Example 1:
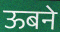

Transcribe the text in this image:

ऊबने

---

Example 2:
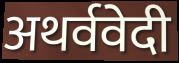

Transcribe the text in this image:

अथर्ववेदी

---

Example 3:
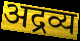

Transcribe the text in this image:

अद्रव्य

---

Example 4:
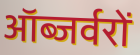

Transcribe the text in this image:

ऑब्जर्वरों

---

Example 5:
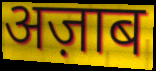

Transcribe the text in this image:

अज़ाब